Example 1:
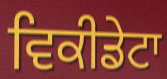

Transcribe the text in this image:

ਵਿਕੀਡੇਟਾ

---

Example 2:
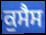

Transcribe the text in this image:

ਕੁਸੈਸ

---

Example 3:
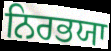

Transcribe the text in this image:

ਨਿਰਭਯਾ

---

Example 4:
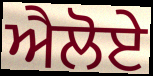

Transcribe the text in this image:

ਐਲੋਏ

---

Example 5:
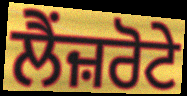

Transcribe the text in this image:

ਲੈਂਜ਼ਰੋਟੇ